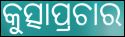
କୁତ୍ସାପ୍ରଚାର